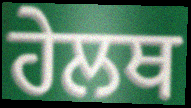
ਹੇਲਥ